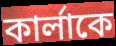
কার্লাকে